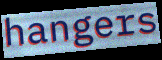
hangers